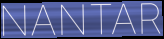
NANTAR